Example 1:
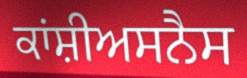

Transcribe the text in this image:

ਕਾਂਸ਼ੀਅਸਨੈਸ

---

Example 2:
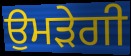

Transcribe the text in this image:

ਉਮੜੇਗੀ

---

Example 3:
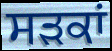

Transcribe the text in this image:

ਸੜਕਾਂ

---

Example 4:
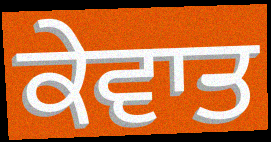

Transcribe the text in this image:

ਕੇਵਾਤ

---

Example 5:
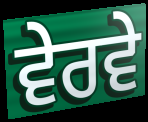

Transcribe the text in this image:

ਵੇਰਵੇ